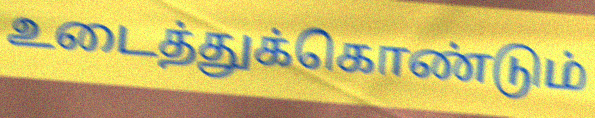
உடைத்துக்கொண்டும்